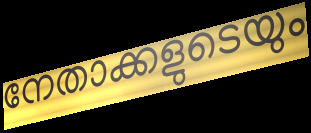
നേതാക്കളുടെയും